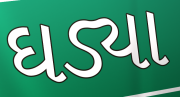
ઘડ્યા